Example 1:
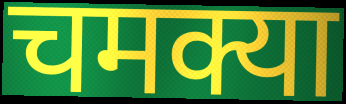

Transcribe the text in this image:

चमक्या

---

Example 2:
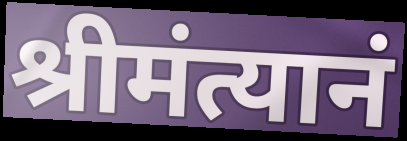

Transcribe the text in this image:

श्रीमंत्यानं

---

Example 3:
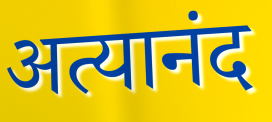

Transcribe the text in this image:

अत्यानंद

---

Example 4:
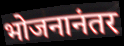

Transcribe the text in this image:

भोजनानंतर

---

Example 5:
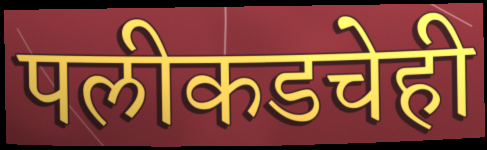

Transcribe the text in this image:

पलीकडचेही